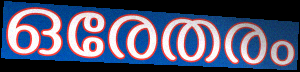
ഒരേതരം